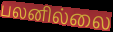
பலனில்லை